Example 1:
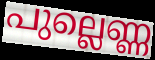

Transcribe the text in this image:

പുല്ലെണ്ണ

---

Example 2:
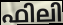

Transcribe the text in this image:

ഫിലി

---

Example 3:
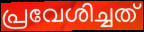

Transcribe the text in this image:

പ്രവേശിച്ചത്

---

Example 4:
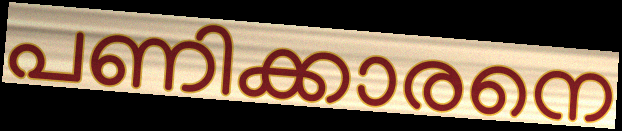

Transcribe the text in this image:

പണിക്കാരനെ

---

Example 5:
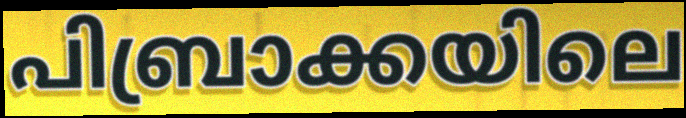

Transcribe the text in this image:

പിബ്രാക്കയിലെ